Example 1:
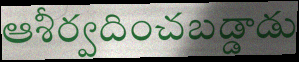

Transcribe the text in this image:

ఆశీర్వదించబడ్డాడు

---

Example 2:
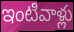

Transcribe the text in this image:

ఇంటివాళ్లు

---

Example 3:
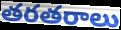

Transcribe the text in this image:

తరతరాలు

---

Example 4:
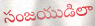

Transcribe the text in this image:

సంజయుడిలా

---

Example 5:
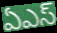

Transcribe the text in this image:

ఏఎస్